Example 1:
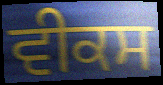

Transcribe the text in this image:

ਵੀਕਸ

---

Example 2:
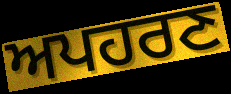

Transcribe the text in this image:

ਅਪਹਰਣ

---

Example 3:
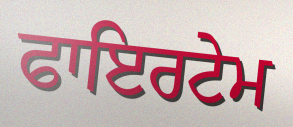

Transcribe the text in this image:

ਫਾਇਰਟੇਮ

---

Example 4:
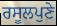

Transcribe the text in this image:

ਰਸੂਲਪੁਣੇ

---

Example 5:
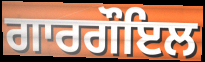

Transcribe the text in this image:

ਗਾਰਗੌਇਲ